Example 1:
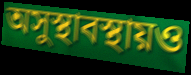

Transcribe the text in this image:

অসুস্থাবস্থায়ও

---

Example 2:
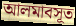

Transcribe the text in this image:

আলমাবসূত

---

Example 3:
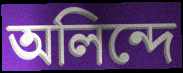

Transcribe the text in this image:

অলিন্দে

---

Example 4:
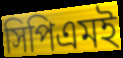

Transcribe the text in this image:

সিপিএমই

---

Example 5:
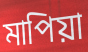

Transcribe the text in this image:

মাপিয়া